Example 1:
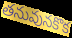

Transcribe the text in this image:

తనువునకొక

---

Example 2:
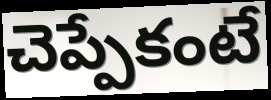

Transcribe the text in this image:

చెప్పేకంటే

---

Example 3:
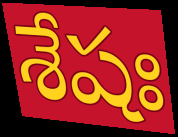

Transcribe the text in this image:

శేషః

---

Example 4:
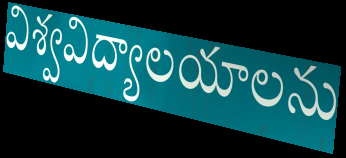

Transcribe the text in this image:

విశ్వవిద్యాలయాలను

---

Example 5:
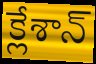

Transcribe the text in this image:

క్లేశాన్